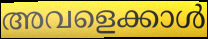
അവളെക്കാൾ